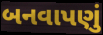
બનવાપણું